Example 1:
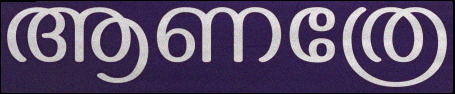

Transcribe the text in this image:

ആണത്രേ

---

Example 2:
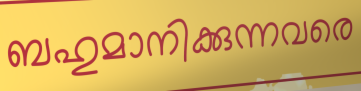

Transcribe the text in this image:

ബഹുമാനിക്കുന്നവരെ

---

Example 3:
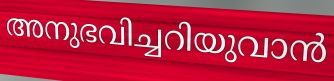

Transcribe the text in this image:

അനുഭവിച്ചറിയുവാൻ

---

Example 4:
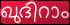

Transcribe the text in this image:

ഖുദിറാം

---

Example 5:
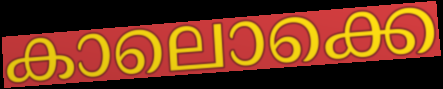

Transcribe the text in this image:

കാലൊക്കെ